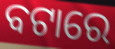
ବଟାରେ